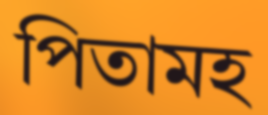
পিতামহ